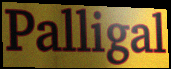
Palligal